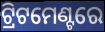
ଟ୍ରିଟମେଣ୍ଟରେ